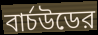
বার্চউডের